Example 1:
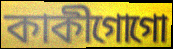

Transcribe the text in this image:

কাকীগোগো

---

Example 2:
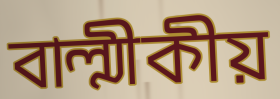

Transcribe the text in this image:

বাল্মীকীয়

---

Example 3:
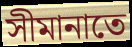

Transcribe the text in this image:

সীমানাতে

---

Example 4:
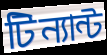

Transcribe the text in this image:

টিন্যান্ট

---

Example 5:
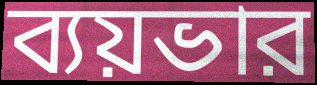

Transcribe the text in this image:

ব্যয়ভার